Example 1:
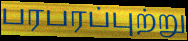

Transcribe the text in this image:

பரபரப்புற்று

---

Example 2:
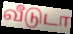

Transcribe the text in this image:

வீடுடா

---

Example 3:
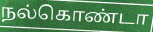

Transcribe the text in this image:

நல்கொண்டா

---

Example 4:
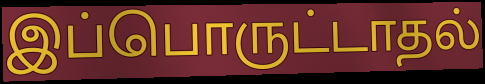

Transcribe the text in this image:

இப்பொருட்டாதல்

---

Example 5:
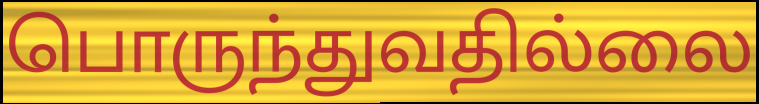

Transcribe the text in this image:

பொருந்துவதில்லை